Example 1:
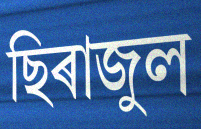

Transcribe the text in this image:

ছিৰাজুল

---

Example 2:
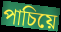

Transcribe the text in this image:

পাচিয়ে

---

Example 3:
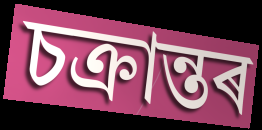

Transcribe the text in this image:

চক্ৰান্তৰ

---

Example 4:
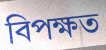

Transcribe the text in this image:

বিপক্ষত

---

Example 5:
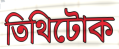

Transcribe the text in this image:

তিথিটোক